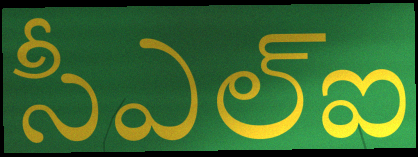
సీఎల్ఐ